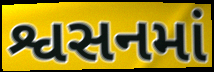
શ્વસનમાં